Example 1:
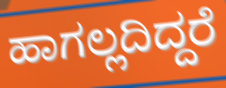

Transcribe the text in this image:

ಹಾಗಲ್ಲದಿದ್ದರೆ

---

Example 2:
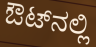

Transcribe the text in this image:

ಔಟ್‌ನಲ್ಲಿ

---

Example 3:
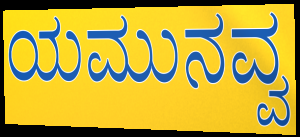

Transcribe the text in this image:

ಯಮುನವ್ವ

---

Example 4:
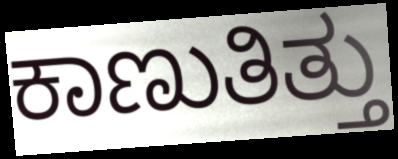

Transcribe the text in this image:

ಕಾಣುತಿತ್ತು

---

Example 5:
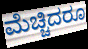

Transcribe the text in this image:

ಮೆಚ್ಚಿದರೂ